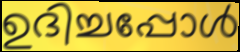
ഉദിച്ചപ്പോൾ